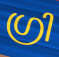
ഗ്രി